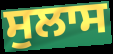
ਸੁਲਾਸ